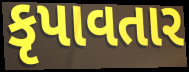
કૃપાવતાર